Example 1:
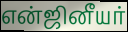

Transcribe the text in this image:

என்ஜினீயர்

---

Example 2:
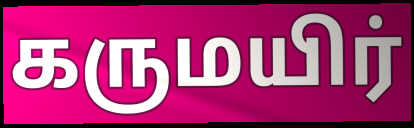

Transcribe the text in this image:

கருமயிர்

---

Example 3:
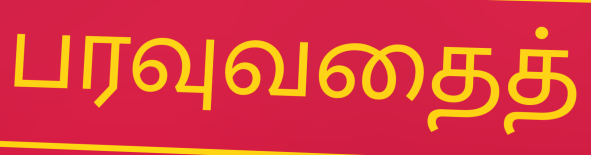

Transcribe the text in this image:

பரவுவதைத்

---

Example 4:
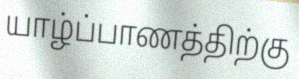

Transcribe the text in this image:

யாழ்ப்பாணத்திற்கு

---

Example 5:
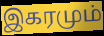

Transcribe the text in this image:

இகரமும்